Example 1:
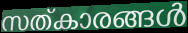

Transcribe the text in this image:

സത്കാരങ്ങൾ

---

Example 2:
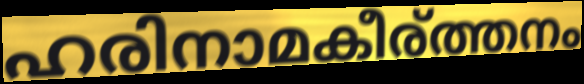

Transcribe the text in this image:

ഹരിനാമകീര്ത്തനം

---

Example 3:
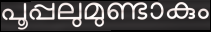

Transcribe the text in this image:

പൂപ്പലുമുണ്ടാകും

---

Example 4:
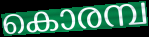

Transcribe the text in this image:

കൊരമ്പ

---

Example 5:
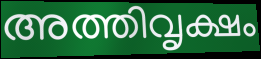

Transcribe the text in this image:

അത്തിവൃക്ഷം